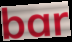
bar